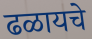
ढळायचे